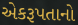
એકરૂપતાનો